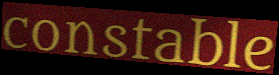
constable